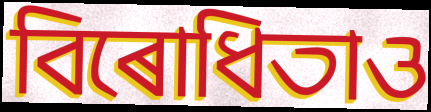
বিৰোধিতাও